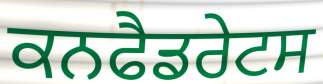
ਕਨਫੈਡਰੇਟਸ